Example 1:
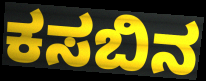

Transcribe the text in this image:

ಕಸಬಿನ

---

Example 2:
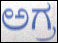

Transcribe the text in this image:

ಅಗ್ರ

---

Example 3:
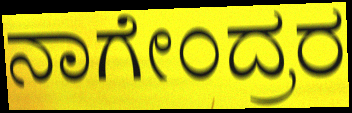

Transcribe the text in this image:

ನಾಗೇಂದ್ರರ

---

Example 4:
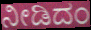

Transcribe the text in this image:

ನೀಡಿದಂ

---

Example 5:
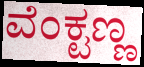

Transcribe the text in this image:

ವೆಂಕ್ಟಣ್ಣ